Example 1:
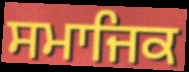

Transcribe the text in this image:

ਸਮਾਜਿਕ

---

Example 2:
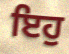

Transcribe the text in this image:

ਇਹੁ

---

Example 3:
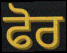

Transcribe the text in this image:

ਫੋਰ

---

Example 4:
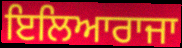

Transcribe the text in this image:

ਇਲਿਆਰਾਜਾ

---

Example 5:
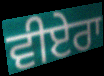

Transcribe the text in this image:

ਵੀਏਰਾ